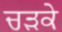
ਚੜਕੇ